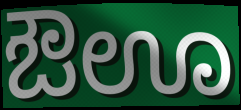
ಔಊ